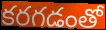
కరగడంతో